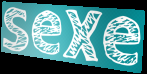
sexe